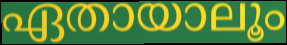
ഏതായാലൂം